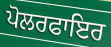
ਪੋਲਰਫਾਇਰ